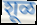
शूळ